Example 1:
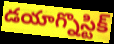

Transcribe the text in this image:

డయాగ్నొస్టిక్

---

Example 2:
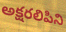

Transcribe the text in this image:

అక్షరలిపిని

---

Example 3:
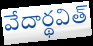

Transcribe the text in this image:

వేదార్థవిత్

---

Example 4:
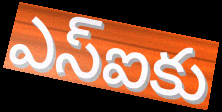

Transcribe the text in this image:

ఎస్ఐకు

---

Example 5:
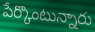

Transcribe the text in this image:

పేర్కొంటున్నారు